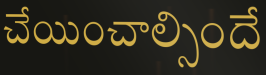
చేయించాల్సిందే